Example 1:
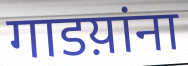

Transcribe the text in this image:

गाडय़ांना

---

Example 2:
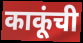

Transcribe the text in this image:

काकूंची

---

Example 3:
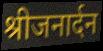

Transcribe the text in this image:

श्रीजनार्दन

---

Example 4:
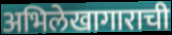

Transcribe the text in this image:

अभिलेखागाराची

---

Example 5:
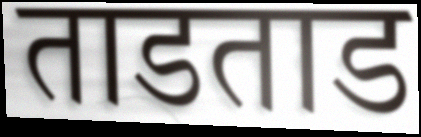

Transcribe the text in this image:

ताडताड